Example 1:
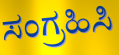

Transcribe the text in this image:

ಸಂಗ್ರಹಿಸಿ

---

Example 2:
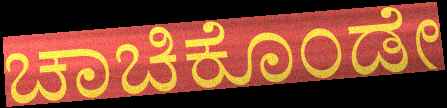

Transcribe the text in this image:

ಚಾಚಿಕೊಂಡೇ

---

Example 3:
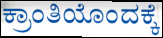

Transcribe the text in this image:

ಕ್ರಾಂತಿಯೊಂದಕ್ಕೆ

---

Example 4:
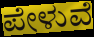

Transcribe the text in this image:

ಪೇಳುವೆ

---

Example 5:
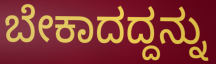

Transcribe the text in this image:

ಬೇಕಾದದ್ದನ್ನು